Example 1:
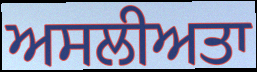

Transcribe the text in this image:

ਅਸਲੀਅਤਾ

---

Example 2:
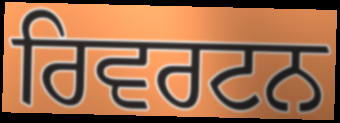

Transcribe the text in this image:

ਰਿਵਰਟਨ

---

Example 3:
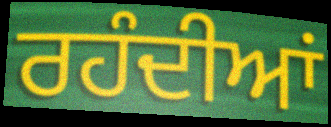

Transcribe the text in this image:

ਰਹੰਦੀਆਂ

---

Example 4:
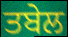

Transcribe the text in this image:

ਤਬੇਲ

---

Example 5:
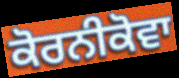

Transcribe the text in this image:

ਕੋਰਨੀਕੋਵਾ